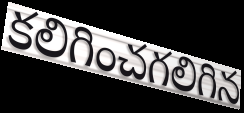
కలిగించగలిగిన